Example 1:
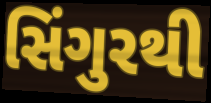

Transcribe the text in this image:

સિંગુરથી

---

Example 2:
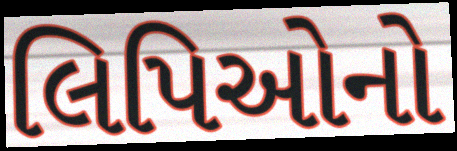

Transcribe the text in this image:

લિપિઓનો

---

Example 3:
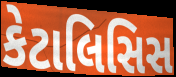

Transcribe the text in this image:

કેટાલિસિસ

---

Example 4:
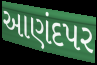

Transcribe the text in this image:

આણંદપર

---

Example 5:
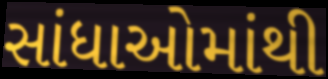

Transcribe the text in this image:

સાંધાઓમાંથી